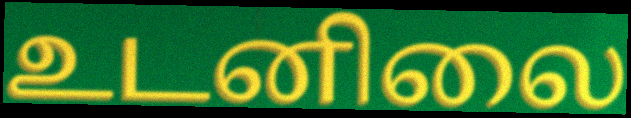
உடனிலை